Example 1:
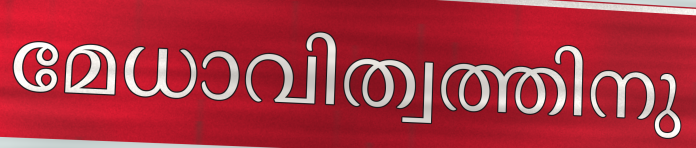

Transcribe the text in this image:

മേധാവിത്വത്തിനു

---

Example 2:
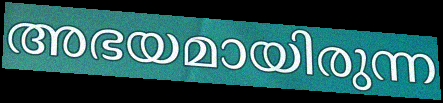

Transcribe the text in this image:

അഭയമായിരുന്ന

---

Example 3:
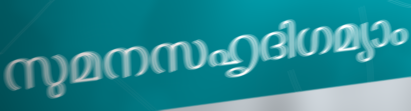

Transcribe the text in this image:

സുമനസഹൃദിഗമ്യാം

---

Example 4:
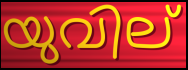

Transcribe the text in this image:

യുവില്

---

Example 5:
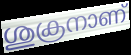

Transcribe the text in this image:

ശുക്രനാണ്